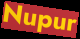
Nupur